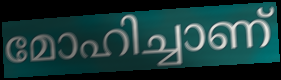
മോഹിച്ചാണ്